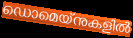
ഡൊമെയ്നുകളിൽ